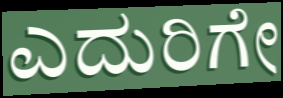
ಎದುರಿಗೇ